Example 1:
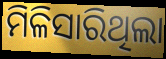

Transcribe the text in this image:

ମିଳିସାରିଥିଲା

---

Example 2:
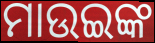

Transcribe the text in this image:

ମାଉଇଙ୍କ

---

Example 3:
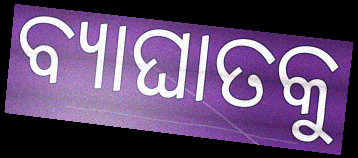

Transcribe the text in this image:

ବ୍ୟାଘାତକୁ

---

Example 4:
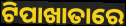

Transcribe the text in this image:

ଟିପାଖାତାରେ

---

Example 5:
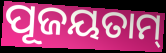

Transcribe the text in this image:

ପୂଜୟତାମ୍